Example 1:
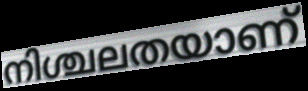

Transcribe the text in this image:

നിശ്ചലതയാണ്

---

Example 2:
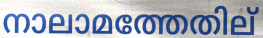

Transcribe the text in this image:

നാലാമത്തേതില്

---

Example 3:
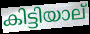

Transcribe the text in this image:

കിട്ടിയാല്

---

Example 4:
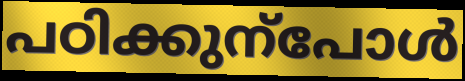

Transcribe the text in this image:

പഠിക്കുന്പോൾ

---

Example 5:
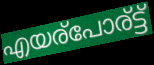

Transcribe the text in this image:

എയര്പോര്ട്ട്